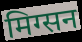
मिग्सन